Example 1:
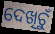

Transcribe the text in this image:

ଦେଖିଚୁଁ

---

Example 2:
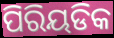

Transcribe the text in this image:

ପିରିୟଡିକ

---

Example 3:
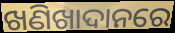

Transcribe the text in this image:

ଖଣିଖାଦାନରେ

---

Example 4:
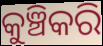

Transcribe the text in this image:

କୁଞ୍ଚିକରି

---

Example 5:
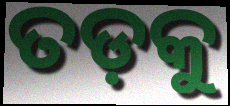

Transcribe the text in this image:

ତଡ଼କୁ